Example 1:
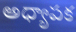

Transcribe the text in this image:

అధ్యాపక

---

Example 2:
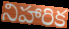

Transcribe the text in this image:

నిహారిక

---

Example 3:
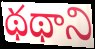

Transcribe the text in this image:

థథాని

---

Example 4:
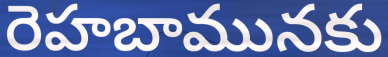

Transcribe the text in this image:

రెహబామునకు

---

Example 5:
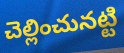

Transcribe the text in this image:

చెల్లించునట్టి